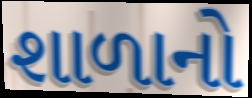
શાળાનો